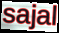
sajal